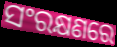
ସଂରକ୍ଷଣରେ